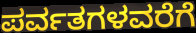
ಪರ್ವತಗಳವರೆಗೆ